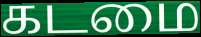
கடமை